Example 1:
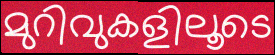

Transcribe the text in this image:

മുറിവുകളിലൂടെ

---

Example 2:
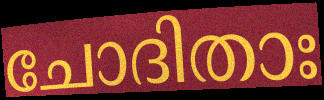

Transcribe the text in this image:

ചോദിതാഃ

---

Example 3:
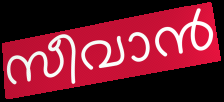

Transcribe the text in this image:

സീവാൻ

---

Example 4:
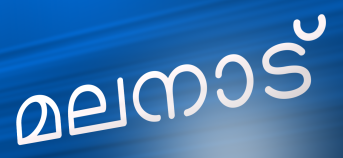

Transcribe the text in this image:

മലനാട്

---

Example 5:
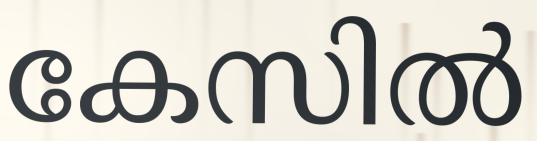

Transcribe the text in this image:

കേസിൽ